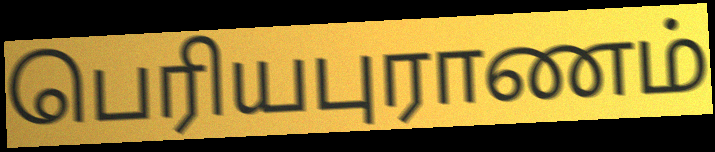
பெரியபுராணம்